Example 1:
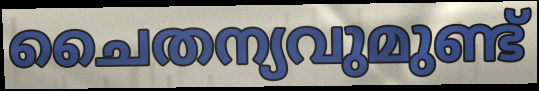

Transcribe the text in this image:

ചൈതന്യവുമുണ്ട്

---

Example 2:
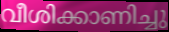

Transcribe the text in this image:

വീശിക്കാണിച്ചു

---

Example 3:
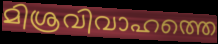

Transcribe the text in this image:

മിശ്രവിവാഹത്തെ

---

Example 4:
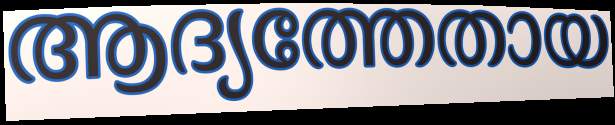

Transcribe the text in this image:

ആദ്യത്തേതായ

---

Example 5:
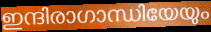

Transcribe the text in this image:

ഇന്ദിരാഗാന്ധിയേയും